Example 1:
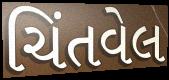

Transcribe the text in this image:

ચિંતવેલ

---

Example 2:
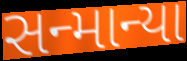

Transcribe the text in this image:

સન્માન્યા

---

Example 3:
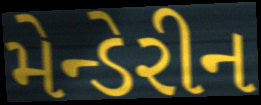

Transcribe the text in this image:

મેન્ડેરીન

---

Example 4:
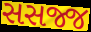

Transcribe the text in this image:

સસજ્જ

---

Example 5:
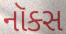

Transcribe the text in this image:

નૉક્સ